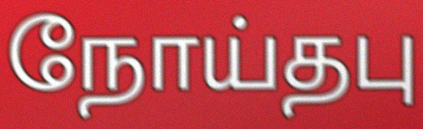
நோய்தபு